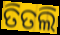
ତିତଲି